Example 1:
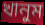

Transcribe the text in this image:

খানুম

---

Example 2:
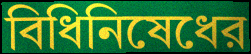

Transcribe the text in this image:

বিধিনিষেধের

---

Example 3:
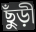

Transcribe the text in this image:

ছুঁড়ী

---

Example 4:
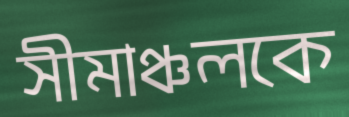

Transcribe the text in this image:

সীমাঞ্চলকে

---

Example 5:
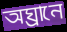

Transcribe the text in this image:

অঘ্রানে